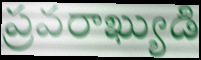
ప్రవరాఖ్యుడి